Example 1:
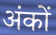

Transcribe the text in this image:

अंकों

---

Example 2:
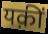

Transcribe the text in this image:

यक़ीं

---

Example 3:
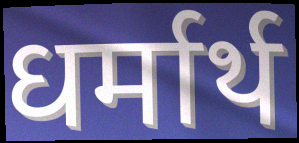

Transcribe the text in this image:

धर्मार्थ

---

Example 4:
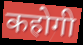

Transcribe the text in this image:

कहोगी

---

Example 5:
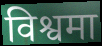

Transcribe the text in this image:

विश्वमा